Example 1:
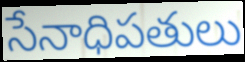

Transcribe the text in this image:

సేనాధిపతులు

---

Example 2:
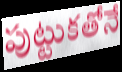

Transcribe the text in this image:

పుట్టుకతోనే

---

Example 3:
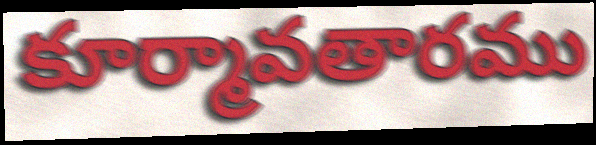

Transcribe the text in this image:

కూర్మావతారము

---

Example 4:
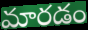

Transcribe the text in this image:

మారడం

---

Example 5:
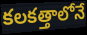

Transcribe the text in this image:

కలకత్తాలోనే